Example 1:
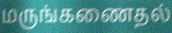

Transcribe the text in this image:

மருங்கணைதல்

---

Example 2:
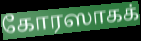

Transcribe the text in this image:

கோரஸாகக்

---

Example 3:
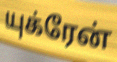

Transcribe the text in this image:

யுக்ரேன்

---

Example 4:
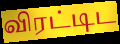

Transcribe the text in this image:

விரட்டிட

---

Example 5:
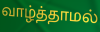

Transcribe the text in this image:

வாழ்த்தாமல்